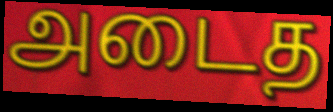
அடைத